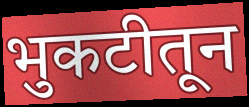
भुकटीतून